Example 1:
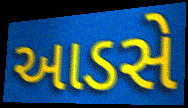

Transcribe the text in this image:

આડસે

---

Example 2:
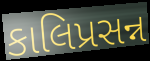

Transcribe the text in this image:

કાલિપ્રસન્ન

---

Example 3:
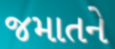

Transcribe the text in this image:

જમાતને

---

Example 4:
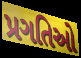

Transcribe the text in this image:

પ્રગતિઓ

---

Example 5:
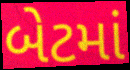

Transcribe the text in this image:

બેટમાં